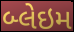
બ્લેઇમ